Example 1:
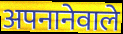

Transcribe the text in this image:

अपनानेवाले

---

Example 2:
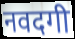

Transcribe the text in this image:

नवदगी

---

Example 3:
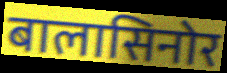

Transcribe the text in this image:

बालासिनोर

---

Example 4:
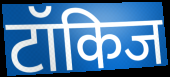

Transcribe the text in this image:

टॉकिज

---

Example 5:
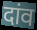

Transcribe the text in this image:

दांव